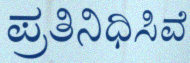
ಪ್ರತಿನಿಧಿಸಿವೆ